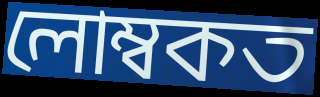
লোম্বকত